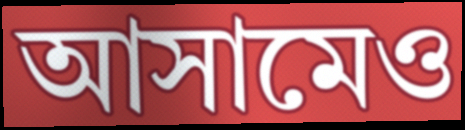
আসামেও